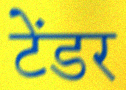
टेंडर